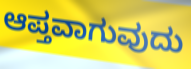
ಆಪ್ತವಾಗುವುದು